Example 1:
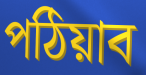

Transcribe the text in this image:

পঠিয়াব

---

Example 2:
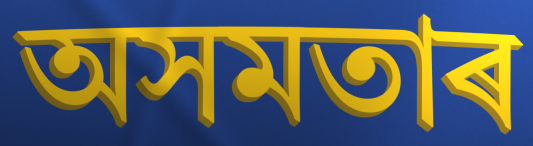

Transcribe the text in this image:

অসমতাৰ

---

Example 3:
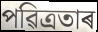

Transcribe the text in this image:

পৱিত্ৰতাৰ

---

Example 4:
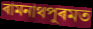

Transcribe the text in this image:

ৰামনাথপুৰমত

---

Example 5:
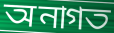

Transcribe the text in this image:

অনাগত